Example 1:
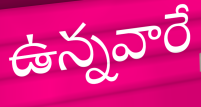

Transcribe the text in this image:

ఉన్నవారే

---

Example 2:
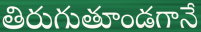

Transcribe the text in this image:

తిరుగుతూండగానే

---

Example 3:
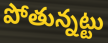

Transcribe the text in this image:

పోతున్నట్టు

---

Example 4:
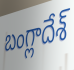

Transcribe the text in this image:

బంగ్లాదేశ్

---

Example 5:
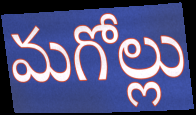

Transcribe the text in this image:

మగోల్లు